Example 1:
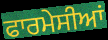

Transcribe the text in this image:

ਫਾਰਮੇਸੀਆਂ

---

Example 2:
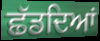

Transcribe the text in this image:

ਛੱਡਦਿਆਂ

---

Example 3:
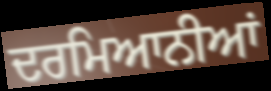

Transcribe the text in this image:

ਦਰਮਿਆਨੀਆਂ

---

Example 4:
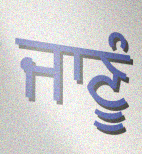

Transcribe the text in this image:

ਜਾਣੂੰ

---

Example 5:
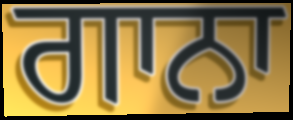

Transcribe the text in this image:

ਗਾਨਾ